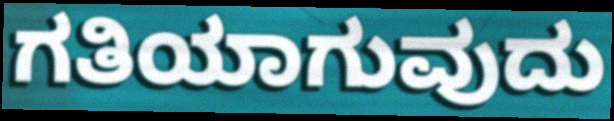
ಗತಿಯಾಗುವುದು